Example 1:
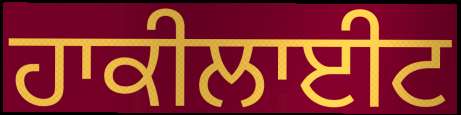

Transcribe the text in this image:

ਹਾਕੀਲਾਈਟ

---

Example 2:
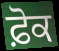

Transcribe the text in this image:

ਫ਼ੋਕ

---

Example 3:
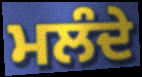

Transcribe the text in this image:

ਮਲੰਦੇ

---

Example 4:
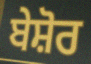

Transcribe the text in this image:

ਬੇਸ਼ੋਰ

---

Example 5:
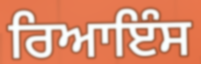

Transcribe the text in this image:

ਰਿਆਇੰਸ